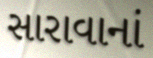
સારાવાનાં